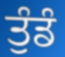
ਤੁੰਡੰ